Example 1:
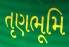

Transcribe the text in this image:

તૃણભૂમિ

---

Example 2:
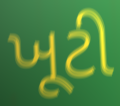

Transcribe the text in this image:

ખૂટી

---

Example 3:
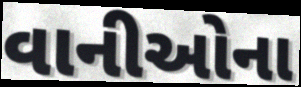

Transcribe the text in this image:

વાનીઓના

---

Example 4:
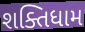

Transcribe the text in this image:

શક્તિધામ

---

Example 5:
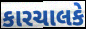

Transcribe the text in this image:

કારચાલકે